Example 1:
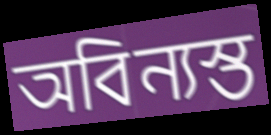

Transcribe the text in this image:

অবিন্যস্ত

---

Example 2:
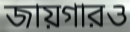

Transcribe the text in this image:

জায়গারও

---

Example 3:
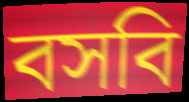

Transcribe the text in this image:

বসবি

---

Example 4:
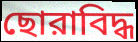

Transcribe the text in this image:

ছোরাবিদ্ধ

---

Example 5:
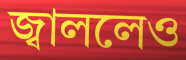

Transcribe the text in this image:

জ্বাললেও